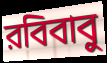
রবিবাবু